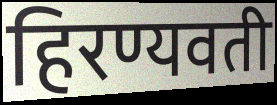
हिरण्यवती